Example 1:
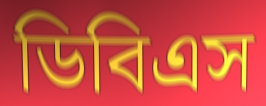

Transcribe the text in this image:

ডিবিএস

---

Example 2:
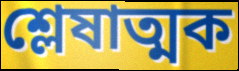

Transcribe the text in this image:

শ্লেষাত্মক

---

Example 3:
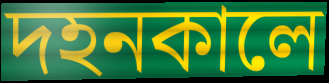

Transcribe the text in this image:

দহনকালে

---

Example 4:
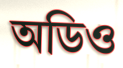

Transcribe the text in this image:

অডিও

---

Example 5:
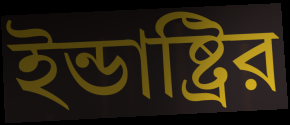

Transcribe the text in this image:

ইন্ডাষ্ট্রির